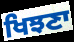
ਖਿਝਣਾ